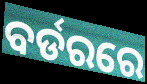
ବର୍ଡରରେ